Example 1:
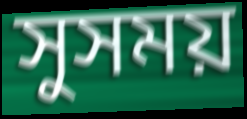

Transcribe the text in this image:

সুসময়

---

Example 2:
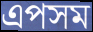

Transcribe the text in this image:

এপসম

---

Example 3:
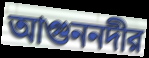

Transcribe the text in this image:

আগুননদীর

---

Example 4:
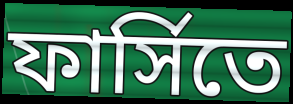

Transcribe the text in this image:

ফার্সিতে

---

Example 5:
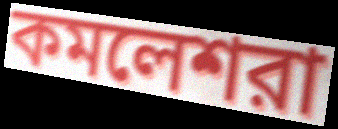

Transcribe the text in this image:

কমলেশরা